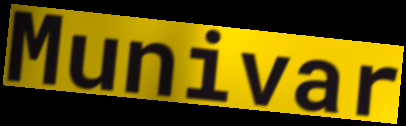
Munivar